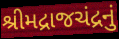
શ્રીમદ્રાજચંદ્રનું